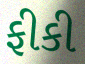
ફીકી